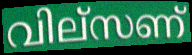
വില്സണ്